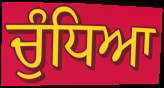
ਚੁੰਧਿਆ